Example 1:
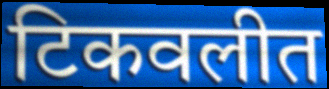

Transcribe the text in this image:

टिकवलीत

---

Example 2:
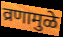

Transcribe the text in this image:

व्रणामुळे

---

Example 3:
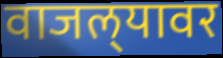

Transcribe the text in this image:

वाजल्यावर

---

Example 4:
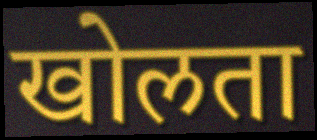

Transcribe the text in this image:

खोलता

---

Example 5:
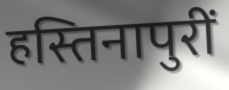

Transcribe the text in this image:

हस्तिनापुरीं